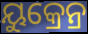
ୟୁକ୍ରେନ୍ର